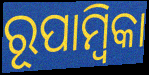
ରୂପାମ୍ବିକା